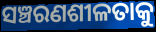
ସଞ୍ଚରଣଶୀଳତାକୁ